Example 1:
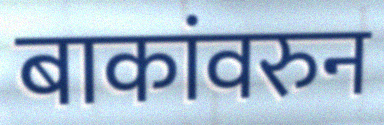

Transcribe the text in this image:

बाकांवरुन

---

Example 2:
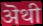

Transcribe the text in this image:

ऄथी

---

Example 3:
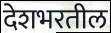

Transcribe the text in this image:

देशभरतील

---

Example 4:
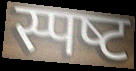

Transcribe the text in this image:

स्‍पष्‍ट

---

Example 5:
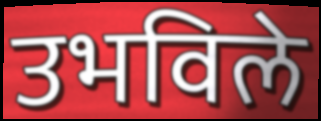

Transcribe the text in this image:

उभविले